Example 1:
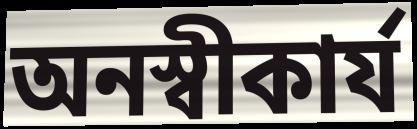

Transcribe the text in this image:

অনস্বীকাৰ্য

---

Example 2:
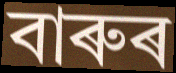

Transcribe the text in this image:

বাৰুৰ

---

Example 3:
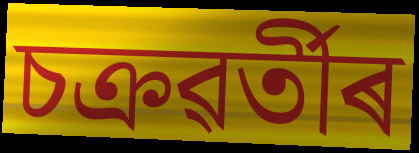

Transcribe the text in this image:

চক্ৰৱৰ্তীৰ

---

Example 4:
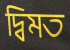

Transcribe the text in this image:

দ্বিমত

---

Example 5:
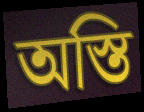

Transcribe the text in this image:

অস্তি